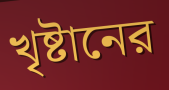
খৃষ্টানের